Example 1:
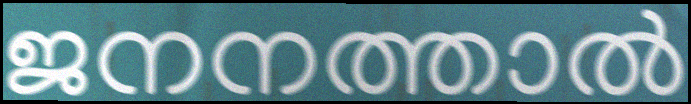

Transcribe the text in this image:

ജനനത്താൽ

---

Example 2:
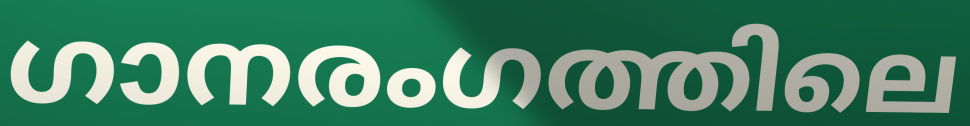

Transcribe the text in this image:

ഗാനരംഗത്തിലെ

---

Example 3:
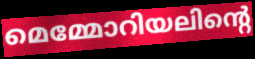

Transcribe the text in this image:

മെമ്മോറിയലിന്റെ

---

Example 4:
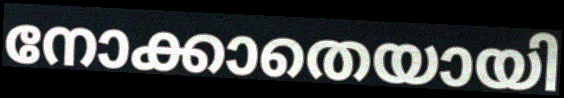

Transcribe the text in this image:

നോക്കാതെയായി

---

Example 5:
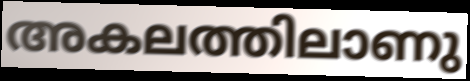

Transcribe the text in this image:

അകലത്തിലാണു